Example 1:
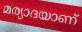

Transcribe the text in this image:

മര്യാദയാണ്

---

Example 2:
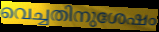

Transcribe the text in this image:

വെച്ചതിനുശേഷം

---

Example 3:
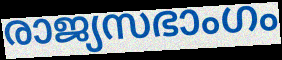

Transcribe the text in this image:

രാജ്യസഭാംഗം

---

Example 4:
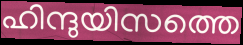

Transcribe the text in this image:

ഹിന്ദുയിസത്തെ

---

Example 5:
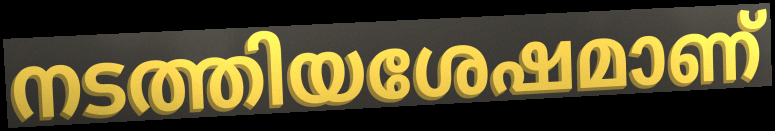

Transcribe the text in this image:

നടത്തിയശേഷമാണ്